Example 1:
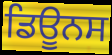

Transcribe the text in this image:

ਡਿਊਨਸ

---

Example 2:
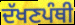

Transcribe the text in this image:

ਦੱਖਣਪੰਥੀ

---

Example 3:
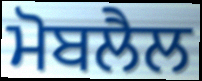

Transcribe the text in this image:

ਮੋਬਲੈਲ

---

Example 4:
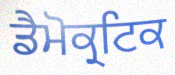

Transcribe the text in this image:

ਡੈਮੋਕ੍ਰਟਿਕ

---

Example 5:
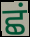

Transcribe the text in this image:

ਛਂ